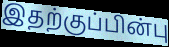
இதற்குப்பின்பு